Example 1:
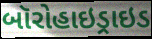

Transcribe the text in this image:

બૉરોહાઇડ્રાઇડ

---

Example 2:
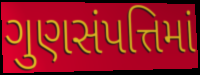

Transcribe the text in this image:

ગુણસંપત્તિમાં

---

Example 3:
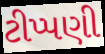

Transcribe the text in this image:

ટીપ્પણી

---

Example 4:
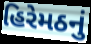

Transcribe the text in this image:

હિરેમઠનું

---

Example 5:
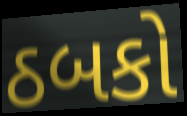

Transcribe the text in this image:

ઠબકો